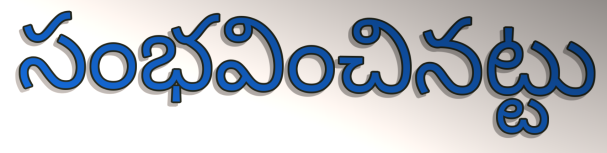
సంభవించినట్టు